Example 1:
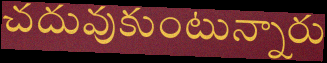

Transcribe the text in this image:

చదువుకుంటున్నారు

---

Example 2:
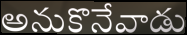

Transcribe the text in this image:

అనుకొనేవాడు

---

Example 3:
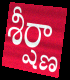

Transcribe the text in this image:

శీర్ష్ణా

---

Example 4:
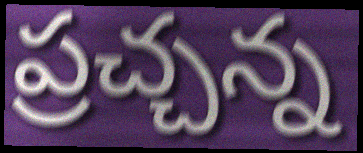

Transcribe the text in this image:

ప్రచ్చన్న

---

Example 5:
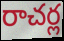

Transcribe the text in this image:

రాచర్ల